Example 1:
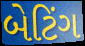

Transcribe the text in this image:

બેટિંગ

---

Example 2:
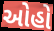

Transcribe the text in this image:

ઓહો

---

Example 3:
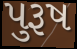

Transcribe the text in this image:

પુરૂષ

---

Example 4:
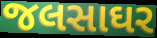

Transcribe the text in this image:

જલસાઘર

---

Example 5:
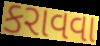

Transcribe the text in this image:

કરાવવા